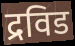
द्रविड